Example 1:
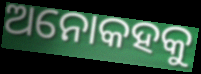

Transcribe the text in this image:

ଅନୋକହକୁ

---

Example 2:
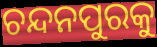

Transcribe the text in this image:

ଚନ୍ଦନପୁରକୁ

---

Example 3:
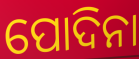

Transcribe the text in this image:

ପୋଦିନା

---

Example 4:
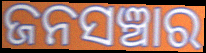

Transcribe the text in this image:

ଜନସଞ୍ଚାର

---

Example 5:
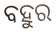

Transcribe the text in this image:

ବହୁର